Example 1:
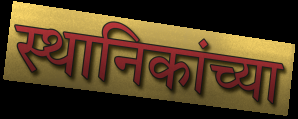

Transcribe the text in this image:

स्थानिकांच्या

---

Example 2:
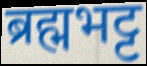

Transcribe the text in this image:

ब्रह्मभट्ट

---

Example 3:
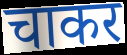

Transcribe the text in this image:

चाकर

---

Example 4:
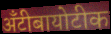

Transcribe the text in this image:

अँटीबायोटीक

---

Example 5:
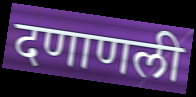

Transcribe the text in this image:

दणाणली